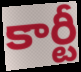
కార్టీ